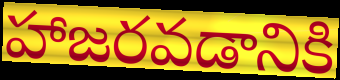
హాజరవడానికి